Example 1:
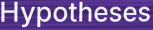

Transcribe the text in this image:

Hypotheses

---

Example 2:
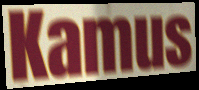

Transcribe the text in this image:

Kamus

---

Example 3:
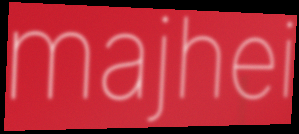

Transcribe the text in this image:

majhei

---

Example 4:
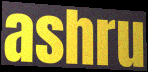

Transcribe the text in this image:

ashru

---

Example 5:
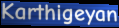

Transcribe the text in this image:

Karthigeyan